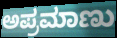
ಅಪ್ರಮಾಣು